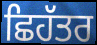
ਛਿਹੱਤਰ